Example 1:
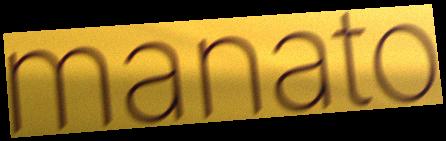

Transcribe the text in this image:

manato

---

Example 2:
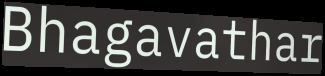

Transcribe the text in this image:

Bhagavathar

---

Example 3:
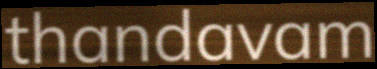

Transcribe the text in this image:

thandavam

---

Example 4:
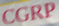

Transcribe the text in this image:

CGRP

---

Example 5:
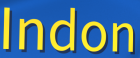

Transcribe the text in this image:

Indon